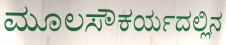
ಮೂಲಸೌಕರ್ಯದಲ್ಲಿನ